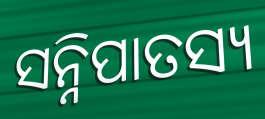
ସନ୍ନିପାତସ୍ୟ